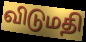
விடுமதி